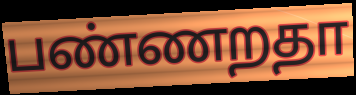
பண்ணறதா